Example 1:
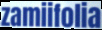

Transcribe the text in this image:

zamiifolia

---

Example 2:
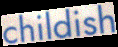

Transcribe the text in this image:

childish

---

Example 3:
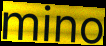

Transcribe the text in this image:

mino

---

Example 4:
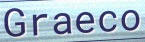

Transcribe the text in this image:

Graeco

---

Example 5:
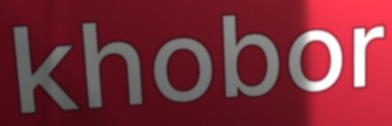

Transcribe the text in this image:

khobor